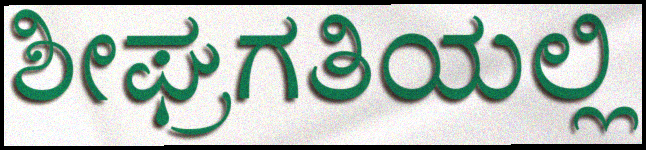
ಶೀಘ್ರಗತಿಯಲ್ಲಿ